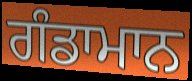
ਗੰਡਾਮਾਨ